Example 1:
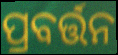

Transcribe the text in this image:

ପ୍ରବର୍ତ୍ତନ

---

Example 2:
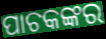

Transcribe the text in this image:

ପାଚକଙ୍କର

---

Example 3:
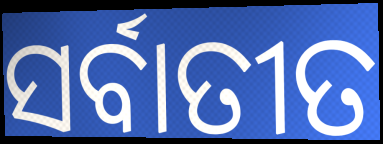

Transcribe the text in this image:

ସର୍ବାତୀତ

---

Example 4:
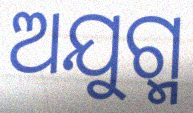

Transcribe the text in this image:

ଅଯୁଗ୍ମ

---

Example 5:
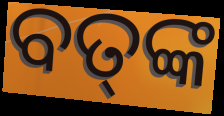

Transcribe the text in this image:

ବତ୍‍ଙ୍କ